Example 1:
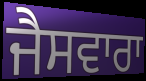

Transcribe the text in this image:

ਜੈਸਵਾਰਾ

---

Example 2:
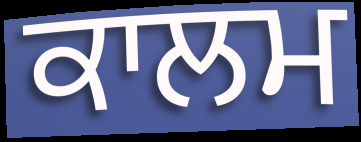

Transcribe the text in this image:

ਕਾਲਮ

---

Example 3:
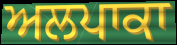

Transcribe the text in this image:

ਅਲਪਾਕਾ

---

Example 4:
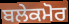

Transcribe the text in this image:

ਬਲੇਕਮੋਰ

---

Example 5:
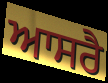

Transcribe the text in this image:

ਆਸਰੈ